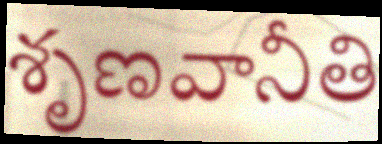
శృణవానీతి